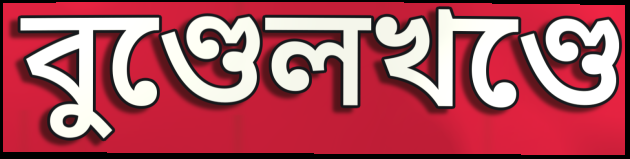
বুণ্ডেলখণ্ডে